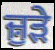
ਜ਼ੁੜੇ